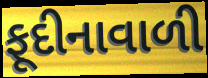
ફૂદીનાવાળી